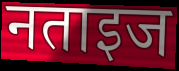
नताइज